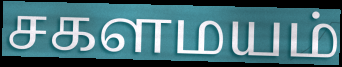
சகளமயம்